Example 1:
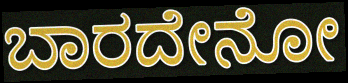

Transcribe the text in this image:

ಬಾರದೇನೋ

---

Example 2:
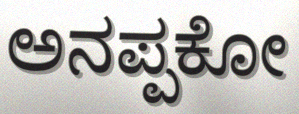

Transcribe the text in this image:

ಅನಪ್ಪಕೋ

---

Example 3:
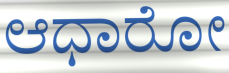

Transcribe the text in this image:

ಆಧಾರೋ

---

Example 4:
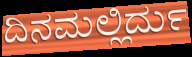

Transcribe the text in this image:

ದಿನಮಲ್ಲಿರ್ದು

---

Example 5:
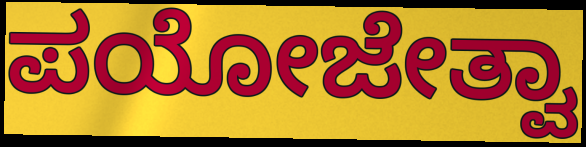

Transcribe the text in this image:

ಪಯೋಜೇತ್ವಾ